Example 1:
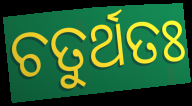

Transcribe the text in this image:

ଚତୁର୍ଥତଃ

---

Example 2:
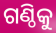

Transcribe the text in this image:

ଗଣ୍ଠିକୁ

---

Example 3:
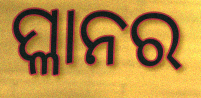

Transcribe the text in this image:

ପ୍ଳାନର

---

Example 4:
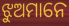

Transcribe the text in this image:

ଝୁଅମାନେ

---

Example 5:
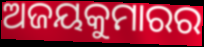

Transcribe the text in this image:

ଅଜୟକୁମାରର